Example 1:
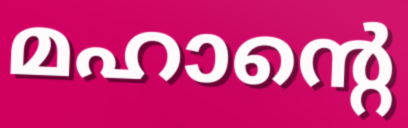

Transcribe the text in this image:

മഹാന്റെ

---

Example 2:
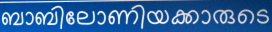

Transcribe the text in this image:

ബാബിലോണിയക്കാരുടെ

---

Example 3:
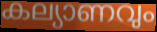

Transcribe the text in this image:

കല്യാണവും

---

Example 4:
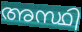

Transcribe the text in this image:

അസ്ഥി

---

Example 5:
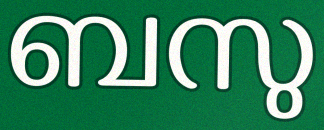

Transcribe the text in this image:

ബസു